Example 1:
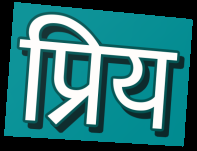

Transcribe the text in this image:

प्रिय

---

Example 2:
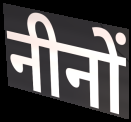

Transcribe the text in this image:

नीनों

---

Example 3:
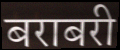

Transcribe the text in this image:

बराबरी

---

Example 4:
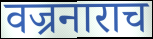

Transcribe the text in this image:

वज्रनाराच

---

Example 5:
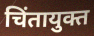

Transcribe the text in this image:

चिंतायुक्त